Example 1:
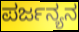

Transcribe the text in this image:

ಪರ್ಜನ್ಯನ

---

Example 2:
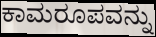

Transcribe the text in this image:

ಕಾಮರೂಪವನ್ನು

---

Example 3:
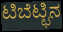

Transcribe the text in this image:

ಟಿಬೆಟ್ಟಿನ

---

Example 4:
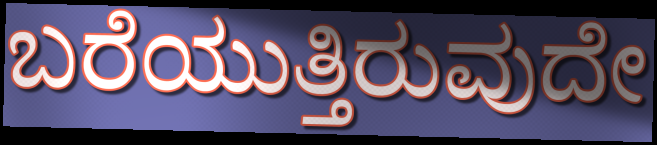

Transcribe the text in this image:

ಬರೆಯುತ್ತಿರುವುದೇ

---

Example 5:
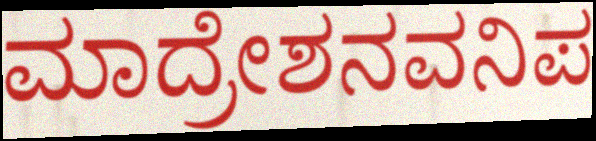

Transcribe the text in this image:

ಮಾದ್ರೇಶನವನಿಪ